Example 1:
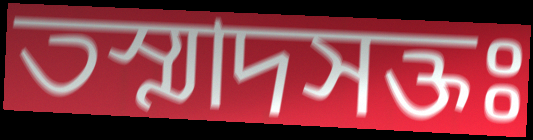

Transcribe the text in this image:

তস্মাদসক্তঃ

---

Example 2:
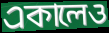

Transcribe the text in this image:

একালেও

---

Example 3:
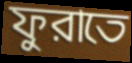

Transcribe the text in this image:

ফুরাতে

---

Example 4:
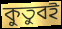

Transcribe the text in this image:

কুতুবই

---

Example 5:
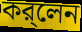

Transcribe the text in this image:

কর্‌লেন